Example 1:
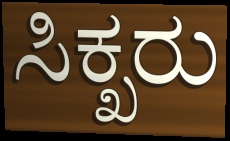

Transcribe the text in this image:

ಸಿಕ್ಖರು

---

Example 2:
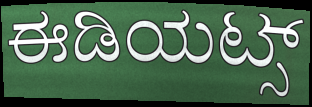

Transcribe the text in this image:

ಈಡಿಯಟ್ಸ್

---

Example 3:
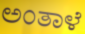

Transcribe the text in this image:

ಅಂತಾಳೆ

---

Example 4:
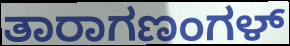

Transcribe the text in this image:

ತಾರಾಗಣಂಗಳ್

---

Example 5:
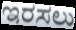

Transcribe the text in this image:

ಇರಸಲು